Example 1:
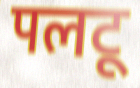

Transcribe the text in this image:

पलटू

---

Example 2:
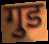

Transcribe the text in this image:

गुड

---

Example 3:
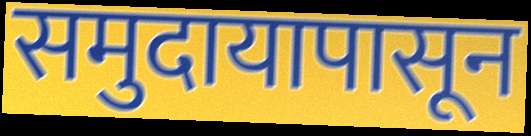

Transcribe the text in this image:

समुदायापासून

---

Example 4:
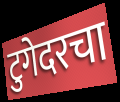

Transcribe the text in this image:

टुगेदरचा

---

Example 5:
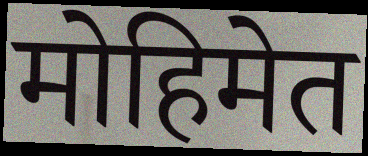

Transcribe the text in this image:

मोहिमेत